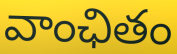
వాంఛితం